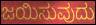
ಜಯಿಸುವುದು